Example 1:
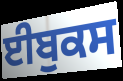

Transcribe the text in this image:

ਈਬੁਕਸ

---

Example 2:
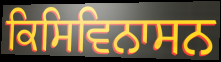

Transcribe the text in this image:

ਕਿਸਿਵਿਨਾਸਨ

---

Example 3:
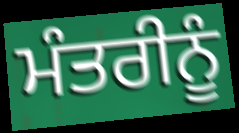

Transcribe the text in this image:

ਮੰਤਰੀਨੂੰ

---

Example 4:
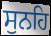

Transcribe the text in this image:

ਸੁਨਹਿ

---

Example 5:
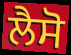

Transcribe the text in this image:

ਲੈਸੋ